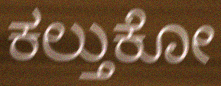
ಕಲ್ತುಕೋ